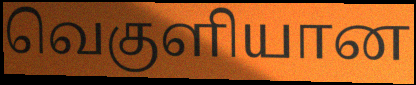
வெகுளியான